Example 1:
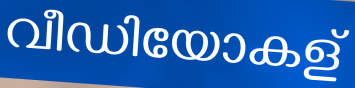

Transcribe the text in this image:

വീഡിയോകള്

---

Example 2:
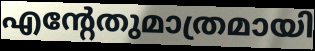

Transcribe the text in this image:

എന്റേതുമാത്രമായി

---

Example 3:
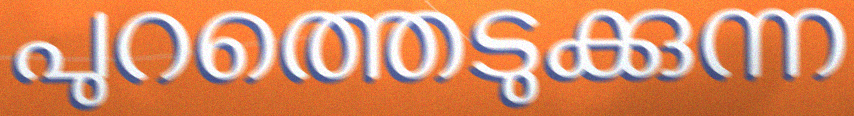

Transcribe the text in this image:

പുറത്തെടുക്കുന്ന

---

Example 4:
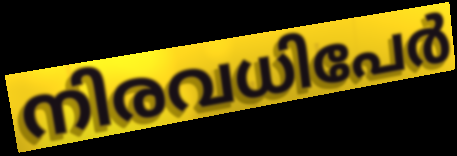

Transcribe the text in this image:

നിരവധിപേർ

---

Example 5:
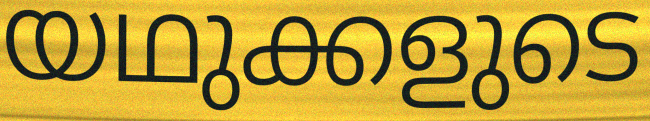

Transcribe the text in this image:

യഥുക്കളുടെ